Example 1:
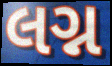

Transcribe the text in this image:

લગ્ન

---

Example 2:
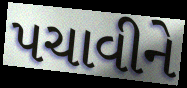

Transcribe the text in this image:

પચાવીને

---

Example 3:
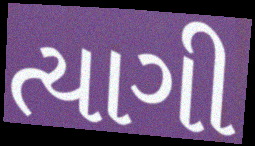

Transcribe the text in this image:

ત્યાગી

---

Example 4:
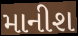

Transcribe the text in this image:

માનીશ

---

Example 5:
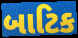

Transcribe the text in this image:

બાટિક